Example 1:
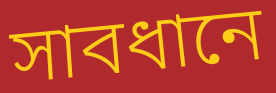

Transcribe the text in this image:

সাবধানে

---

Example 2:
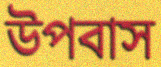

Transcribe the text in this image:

উপবাস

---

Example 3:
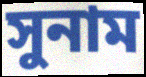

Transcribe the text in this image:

সুনাম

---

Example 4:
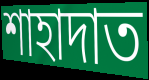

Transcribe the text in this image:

শাহাদাত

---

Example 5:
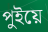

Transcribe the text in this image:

পুইয়ে